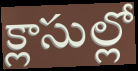
క్లాసుల్లో